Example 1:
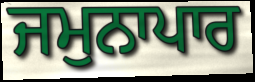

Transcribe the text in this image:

ਜਮੁਨਾਪਾਰ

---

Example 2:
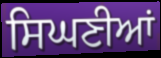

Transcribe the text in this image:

ਸਿਘਣੀਆਂ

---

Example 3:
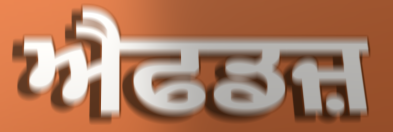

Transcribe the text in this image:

ਐਫਡਜ਼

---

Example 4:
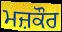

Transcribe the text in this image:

ਮਜ਼ਕੌਰ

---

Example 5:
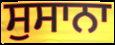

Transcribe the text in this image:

ਸੁਸਾਨਾ